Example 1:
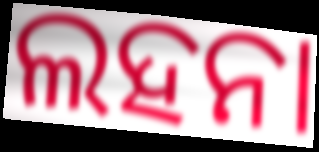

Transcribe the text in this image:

ଲହନା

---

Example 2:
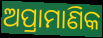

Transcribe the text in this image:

ଅପ୍ରାମାଣିକ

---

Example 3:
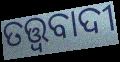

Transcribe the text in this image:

ତତ୍ତ୍ଵବାଦୀ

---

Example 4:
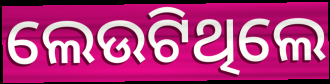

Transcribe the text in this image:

ଲେଉଟିଥିଲେ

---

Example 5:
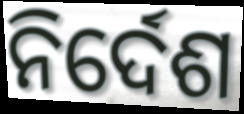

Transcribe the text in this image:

ନିର୍ଦେଶ